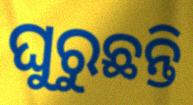
ଘୁରୁଛନ୍ତି